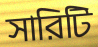
সারিটি